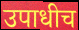
उपाधीच